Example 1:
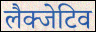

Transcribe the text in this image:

लैक्जेटिव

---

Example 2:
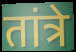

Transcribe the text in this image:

तांत्रे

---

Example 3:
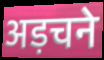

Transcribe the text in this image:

अड़चने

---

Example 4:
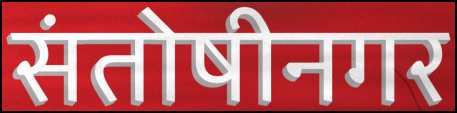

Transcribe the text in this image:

संतोषीनगर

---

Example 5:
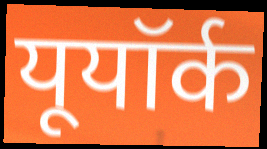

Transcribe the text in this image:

यूयॉर्क